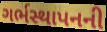
ગર્ભસ્થાપનની